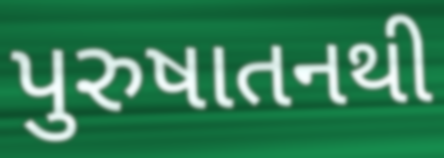
પુરુષાતનથી